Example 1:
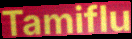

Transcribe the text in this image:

Tamiflu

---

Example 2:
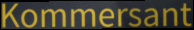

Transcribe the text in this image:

Kommersant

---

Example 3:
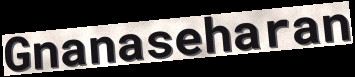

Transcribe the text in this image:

Gnanaseharan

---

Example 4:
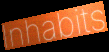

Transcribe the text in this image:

Inhabits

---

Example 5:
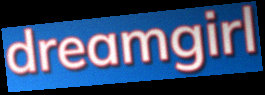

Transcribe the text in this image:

dreamgirl